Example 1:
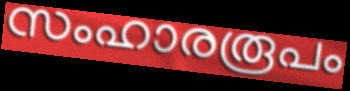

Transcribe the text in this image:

സംഹാരരൂപം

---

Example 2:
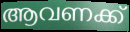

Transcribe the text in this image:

ആവണക്ക്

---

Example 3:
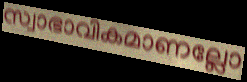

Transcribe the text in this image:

സ്വാഭാവികമാണല്ലോ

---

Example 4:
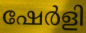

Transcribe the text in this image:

ഷേർളി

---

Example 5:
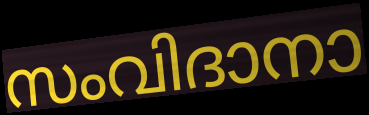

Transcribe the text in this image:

സംവിദാനാ